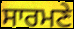
ਸਾਰਮਣੇ